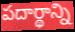
పదార్థాన్ని